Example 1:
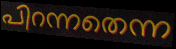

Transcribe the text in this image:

പിറന്നതെന്ന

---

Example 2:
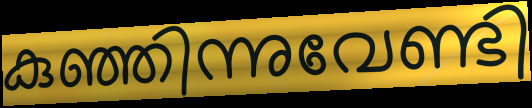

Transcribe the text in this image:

കുഞ്ഞിന്നുവേണ്ടി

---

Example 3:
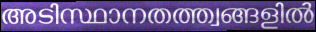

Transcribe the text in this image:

അടിസ്ഥാനതത്ത്വങ്ങളിൽ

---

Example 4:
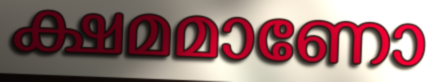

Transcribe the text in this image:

ക്ഷമമാണോ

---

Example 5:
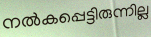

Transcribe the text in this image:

നൽകപ്പെട്ടിരുന്നില്ല